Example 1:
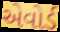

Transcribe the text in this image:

એવોર્ડ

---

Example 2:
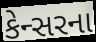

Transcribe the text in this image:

કેન્સરના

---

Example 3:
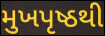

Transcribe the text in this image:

મુખપૃષ્ઠથી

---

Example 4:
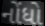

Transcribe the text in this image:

નોંધો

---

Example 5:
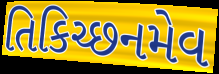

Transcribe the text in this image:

તિકિચ્છનમેવ